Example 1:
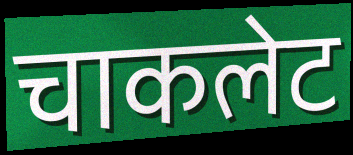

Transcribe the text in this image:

चाकलेट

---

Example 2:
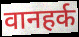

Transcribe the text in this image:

वानहर्क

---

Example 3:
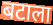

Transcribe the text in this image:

बटाला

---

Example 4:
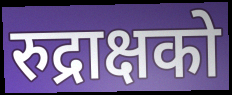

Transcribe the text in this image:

रुद्राक्षको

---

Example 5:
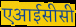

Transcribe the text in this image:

एआईसीसी